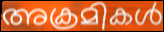
അക്രമികൾ